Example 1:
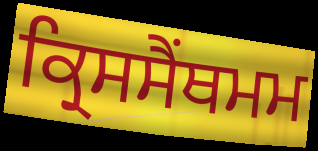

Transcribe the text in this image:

ਕ੍ਰਿਸਸੈਂਥਮਮ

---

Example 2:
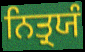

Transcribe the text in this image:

ਨਿਤ੍ਰਯੰ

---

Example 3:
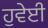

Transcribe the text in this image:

ਹੁਵੇਈ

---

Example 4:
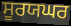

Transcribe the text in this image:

ਸੂਰਯਘਰ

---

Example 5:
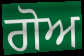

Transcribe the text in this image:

ਗੋਅ